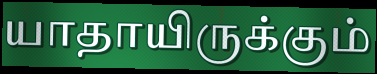
யாதாயிருக்கும்